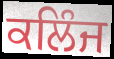
ਕਲਿੰਜ